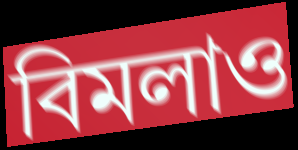
বিমলাও